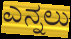
ಎನ್ನಲು